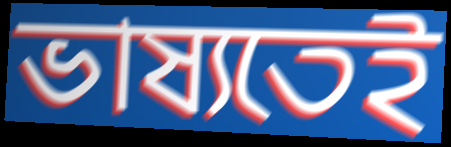
ভাষ্যতেই